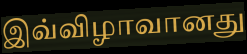
இவ்விழாவானது